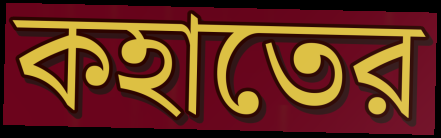
কহাতের